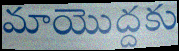
మాయొద్దకు